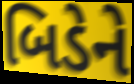
બિડેને